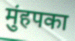
मुंहपका